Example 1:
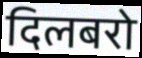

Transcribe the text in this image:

दिलबरो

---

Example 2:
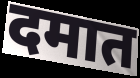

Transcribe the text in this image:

दमात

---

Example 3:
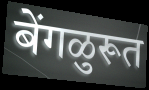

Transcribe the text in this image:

बेंगळुरूत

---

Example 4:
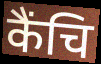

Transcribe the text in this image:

कैंचि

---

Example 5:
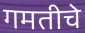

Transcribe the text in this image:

गमतीचे